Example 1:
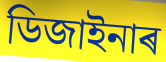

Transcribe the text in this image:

ডিজাইনাৰ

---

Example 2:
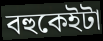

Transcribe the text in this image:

বহুকেইটা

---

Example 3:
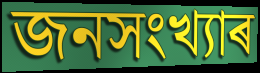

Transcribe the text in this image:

জনসংখ্যাৰ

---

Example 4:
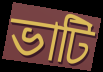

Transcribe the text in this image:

ভাটি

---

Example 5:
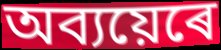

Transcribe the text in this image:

অব্যয়েৰে